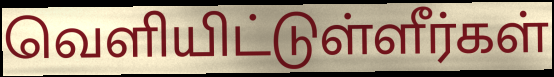
வெளியிட்டுள்ளீர்கள்